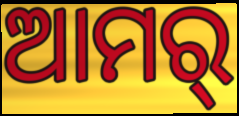
ଆମର୍